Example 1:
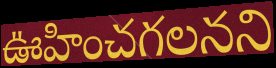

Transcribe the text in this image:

ఊహించగలనని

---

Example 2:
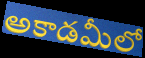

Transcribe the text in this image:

అకాడమీలో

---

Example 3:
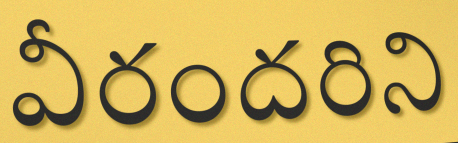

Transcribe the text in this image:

వీరందరిని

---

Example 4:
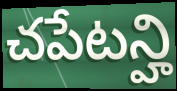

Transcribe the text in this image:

చపేటన్హి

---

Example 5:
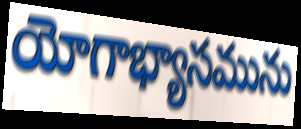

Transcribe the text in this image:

యోగాభ్యాసమును